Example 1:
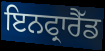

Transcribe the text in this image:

ਇਨਫ੍ਰਾਰੈੱਡ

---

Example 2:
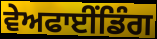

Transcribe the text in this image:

ਵੇਅਫਾਈਂਡਿੰਗ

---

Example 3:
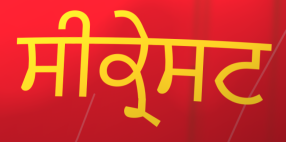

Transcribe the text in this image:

ਸੀਕ੍ਰੇਸਟ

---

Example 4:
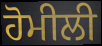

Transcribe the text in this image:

ਹੋਮੀਲੀ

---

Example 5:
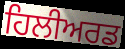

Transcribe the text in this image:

ਹਿਲੀਅਰਡ